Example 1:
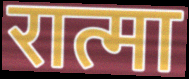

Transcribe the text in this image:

रात्मा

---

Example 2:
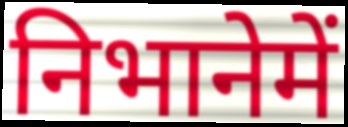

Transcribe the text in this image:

निभानेमें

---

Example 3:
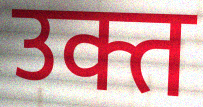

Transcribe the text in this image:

उक्‍त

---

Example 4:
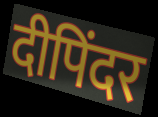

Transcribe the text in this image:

दीपिंदर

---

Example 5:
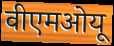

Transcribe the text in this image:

वीएमओयू